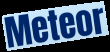
Meteor